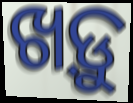
ଖଡ଼ୁ